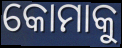
କୋମାକୁ